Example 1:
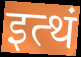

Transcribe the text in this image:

इत्थं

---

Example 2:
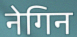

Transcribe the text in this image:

नेगिन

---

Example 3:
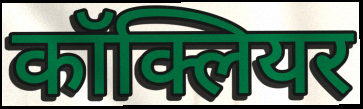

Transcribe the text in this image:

कॉक्लियर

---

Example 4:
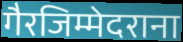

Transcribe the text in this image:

गैरजिम्मेदराना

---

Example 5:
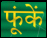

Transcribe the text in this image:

फूंकें